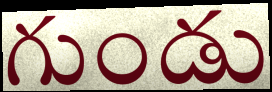
గుండు